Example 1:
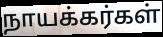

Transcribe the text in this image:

நாயக்கர்கள்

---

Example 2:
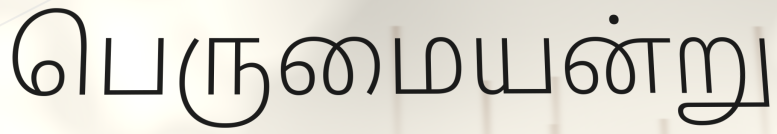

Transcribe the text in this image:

பெருமையன்று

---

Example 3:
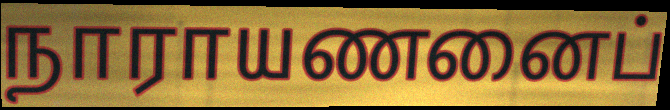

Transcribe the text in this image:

நாராயணனைப்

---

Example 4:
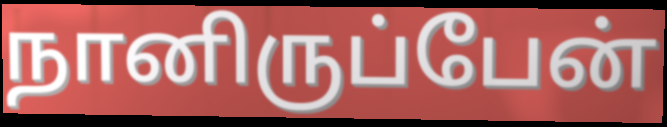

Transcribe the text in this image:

நானிருப்பேன்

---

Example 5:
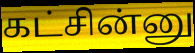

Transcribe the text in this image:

கட்சின்னு